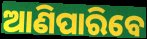
ଆଣିପାରିବେ